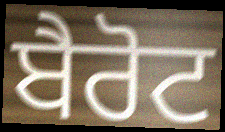
ਬੈਰੋਟ